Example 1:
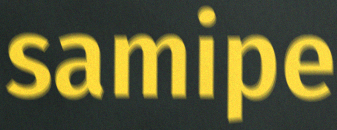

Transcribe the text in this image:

samipe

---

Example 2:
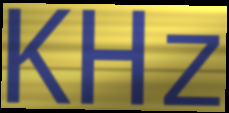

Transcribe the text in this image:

KHz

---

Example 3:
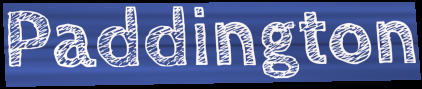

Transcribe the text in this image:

Paddington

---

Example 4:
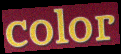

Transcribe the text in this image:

color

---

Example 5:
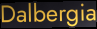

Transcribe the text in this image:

Dalbergia